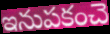
ఇనుపకంచె